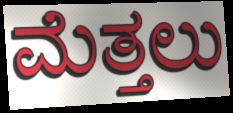
ಮೆತ್ತಲು